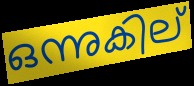
ഒന്നുകില്